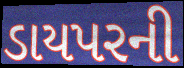
ડાયપરની